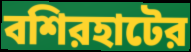
বশিরহাটের